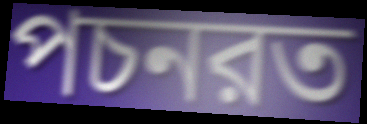
পচনরত